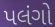
પલંગો